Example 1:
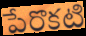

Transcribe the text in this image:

పేరొకటి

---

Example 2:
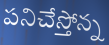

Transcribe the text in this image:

పనిచేస్తోన్న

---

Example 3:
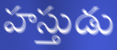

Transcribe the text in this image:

హస్తుడు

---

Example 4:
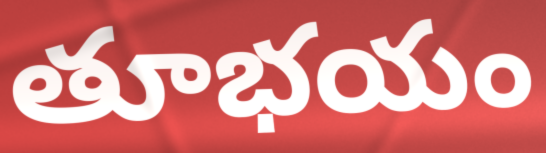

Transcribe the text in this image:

తూభయం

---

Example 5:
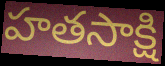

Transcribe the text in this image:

హతసాక్షి